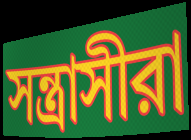
সন্ত্রাসীরা